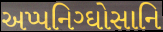
અપ્પનિગ્ઘોસાનિ